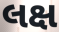
લક્ષ